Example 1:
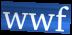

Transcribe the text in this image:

wwf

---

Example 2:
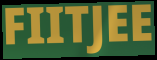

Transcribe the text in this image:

FIITJEE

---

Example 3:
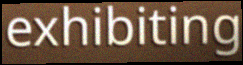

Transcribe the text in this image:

exhibiting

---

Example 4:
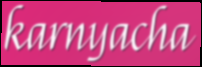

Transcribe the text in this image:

karnyacha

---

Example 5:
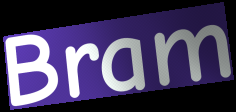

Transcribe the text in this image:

Bram